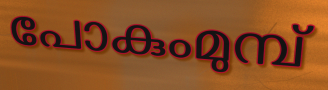
പോകുംമുമ്പ്